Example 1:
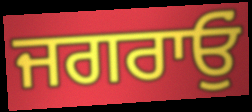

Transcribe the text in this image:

ਜਗਰਾਓੁਂ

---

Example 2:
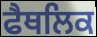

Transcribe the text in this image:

ਫੈਥਲਿਕ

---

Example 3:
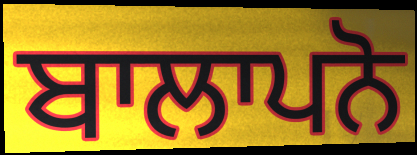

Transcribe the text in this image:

ਬਾਲਾਪਨੋ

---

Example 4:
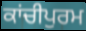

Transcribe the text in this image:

ਕਾਂਚੀਪੁਰਮ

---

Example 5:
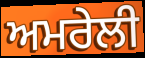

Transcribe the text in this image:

ਅਮਰੇਲੀ